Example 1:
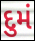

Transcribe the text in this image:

દુમં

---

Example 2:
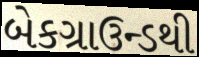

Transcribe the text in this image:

બેકગ્રાઉન્ડથી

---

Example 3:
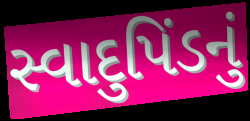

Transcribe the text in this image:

સ્વાદુપિંડનું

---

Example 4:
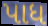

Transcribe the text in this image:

પાધ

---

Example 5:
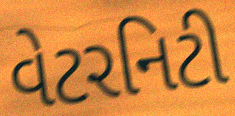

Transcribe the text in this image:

વેટરનિટી